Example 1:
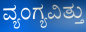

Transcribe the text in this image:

ವ್ಯಂಗ್ಯವಿತ್ತು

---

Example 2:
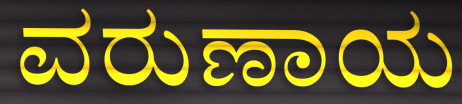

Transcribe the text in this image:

ವರುಣಾಯ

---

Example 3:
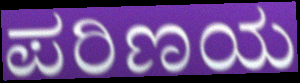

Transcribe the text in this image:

ಪರಿಣಯ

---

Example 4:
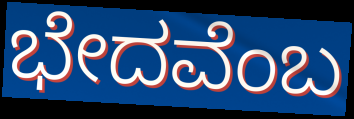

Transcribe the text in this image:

ಭೇದವೆಂಬ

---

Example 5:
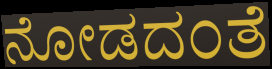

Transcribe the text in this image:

ನೋಡದಂತೆ